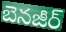
బెనజీర్